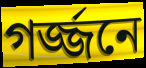
গর্জ্জনে